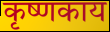
कृष्णकाय